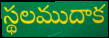
స్థలముదాక